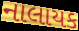
નાલાયક